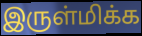
இருள்மிக்க